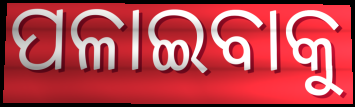
ପଳାଇବାକୁ